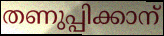
തണുപ്പിക്കാന്